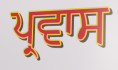
ਪ੍ਰਵਾਸ